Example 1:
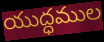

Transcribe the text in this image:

యుద్ధముల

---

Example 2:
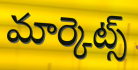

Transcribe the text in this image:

మార్కెట్స్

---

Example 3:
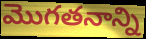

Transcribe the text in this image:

మొగతనాన్ని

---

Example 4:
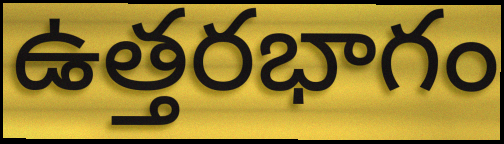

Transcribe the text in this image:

ఉత్తరభాగం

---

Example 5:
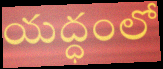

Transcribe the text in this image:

యద్ధంలో